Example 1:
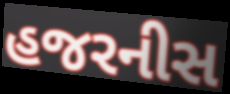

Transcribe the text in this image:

હજરનીસ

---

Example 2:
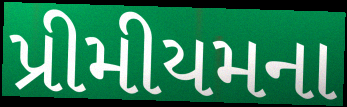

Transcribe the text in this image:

પ્રીમીયમના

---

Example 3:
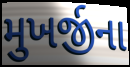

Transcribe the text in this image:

મુખર્જીના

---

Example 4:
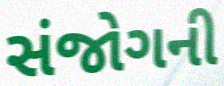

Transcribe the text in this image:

સંજોગની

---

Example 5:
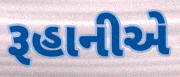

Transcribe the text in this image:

રૂહાનીએ